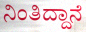
ನಿಂತಿದ್ದಾನೆ